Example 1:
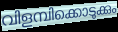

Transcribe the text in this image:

വിളമ്പിക്കൊടുക്കും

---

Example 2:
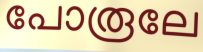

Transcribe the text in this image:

പോരൂലേ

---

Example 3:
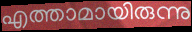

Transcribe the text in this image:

എത്താമായിരുന്നു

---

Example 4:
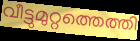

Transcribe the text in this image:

വീട്ടുമുറ്റത്തെത്തി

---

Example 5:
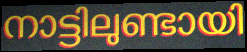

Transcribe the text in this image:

നാട്ടിലുണ്ടായി